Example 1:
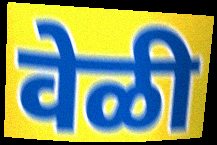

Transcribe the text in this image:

वेळी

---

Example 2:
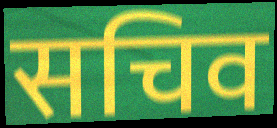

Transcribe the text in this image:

सचिव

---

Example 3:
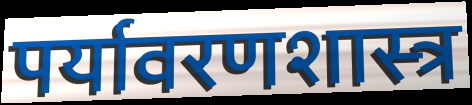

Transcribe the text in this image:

पर्यावरणशास्त्र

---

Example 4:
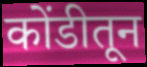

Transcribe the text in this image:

कोंडीतून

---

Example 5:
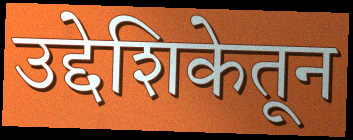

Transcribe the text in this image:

उद्देशिकेतून